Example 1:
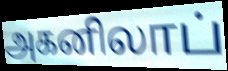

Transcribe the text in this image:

அகனிலாப்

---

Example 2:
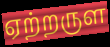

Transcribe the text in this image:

ஏற்றருள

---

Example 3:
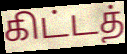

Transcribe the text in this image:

கிட்டத்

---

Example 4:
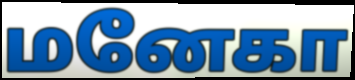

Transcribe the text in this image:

மனேகா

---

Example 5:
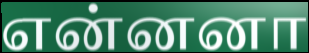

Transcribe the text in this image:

என்னனா